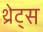
थ्रेट्स